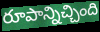
రూపాన్నిచ్చింది